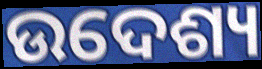
ଉଦେଶ୍ୟ